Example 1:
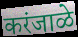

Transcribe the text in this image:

करंजाळे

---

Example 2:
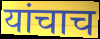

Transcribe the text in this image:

यांचाच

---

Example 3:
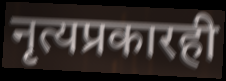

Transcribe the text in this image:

नृत्यप्रकारही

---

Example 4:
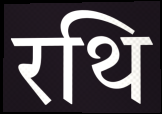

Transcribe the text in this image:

रथि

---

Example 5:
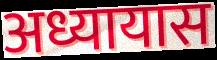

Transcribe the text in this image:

अध्यायास